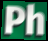
Ph